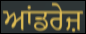
ਆਂਡਰੇਜ਼